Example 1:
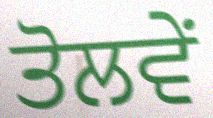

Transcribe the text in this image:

ਤੋਲਵੇਂ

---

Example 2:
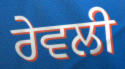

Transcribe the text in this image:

ਰੇਵਲੀ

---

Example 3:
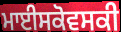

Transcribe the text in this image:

ਮਾਈਸਕੋਵਸਕੀ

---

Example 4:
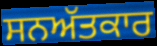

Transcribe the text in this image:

ਸਨਅੱਤਕਾਰ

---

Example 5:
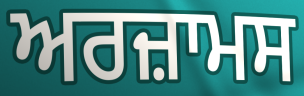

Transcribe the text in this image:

ਅਰਜ਼ਾਮਸ